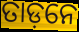
ତାଡ଼ନେ